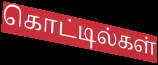
கொட்டில்கள்